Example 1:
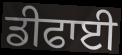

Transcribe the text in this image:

ਡੀਫਾਈ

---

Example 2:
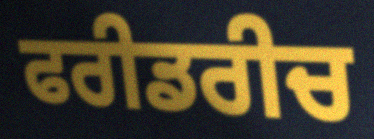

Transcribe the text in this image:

ਫਰੀਡਰੀਚ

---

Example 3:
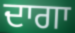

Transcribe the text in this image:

ਦਾਗਾ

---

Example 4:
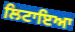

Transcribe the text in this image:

ਲਿਟਾਇਆ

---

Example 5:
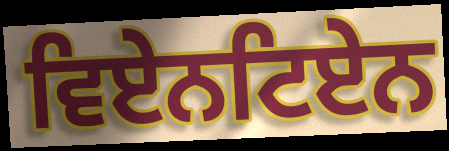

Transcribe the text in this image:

ਵਿਏਨਟਿਏਨ